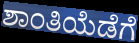
ಶಾಂತಿಯೆಡೆಗೆ